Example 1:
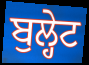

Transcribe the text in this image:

ਬੁਲ੍ਹੇਟ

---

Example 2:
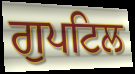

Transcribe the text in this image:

ਗੁਪਟਿਲ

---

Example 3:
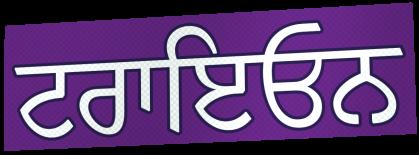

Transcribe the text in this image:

ਟਰਾਇਓਨ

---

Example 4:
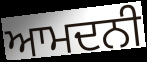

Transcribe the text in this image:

ਆਮਦਨੀ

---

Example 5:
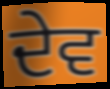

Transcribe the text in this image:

ਦੇਵ